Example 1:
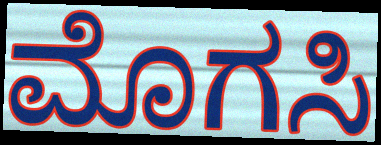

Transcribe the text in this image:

ಮೊಗಸಿ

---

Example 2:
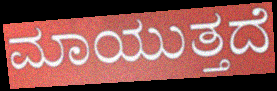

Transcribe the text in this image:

ಮಾಯುತ್ತದೆ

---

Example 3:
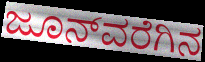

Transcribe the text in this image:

ಜೂನ್‌ವರೆಗಿನ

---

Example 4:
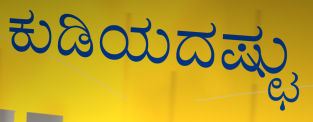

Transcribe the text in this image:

ಕುಡಿಯದಷ್ಟು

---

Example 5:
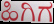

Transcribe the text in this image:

ಹಿಗಿಗ